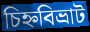
চিহ্নবিভ্রাট